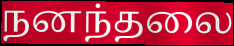
நனந்தலை